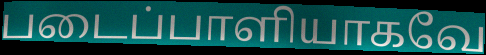
படைப்பாளியாகவே